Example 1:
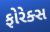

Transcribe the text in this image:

ફોરેક્સ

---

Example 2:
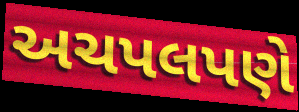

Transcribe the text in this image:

અચપલપણે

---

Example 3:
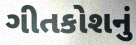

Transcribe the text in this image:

ગીતકોશનું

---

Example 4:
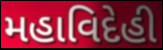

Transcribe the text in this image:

મહાવિદેહી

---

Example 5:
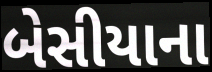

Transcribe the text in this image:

બેસીયાના